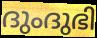
ദുംദുഭി